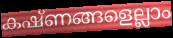
കഷ്ണങ്ങളെല്ലാം